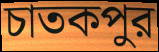
চাতকপুর